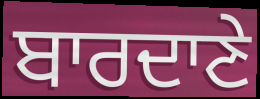
ਬਾਰਦਾਣੇ